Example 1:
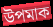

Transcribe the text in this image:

উপমাক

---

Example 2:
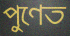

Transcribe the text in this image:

পুণেত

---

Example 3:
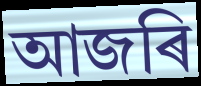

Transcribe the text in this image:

আজৰি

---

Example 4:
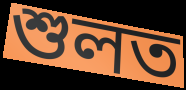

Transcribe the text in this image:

শুলত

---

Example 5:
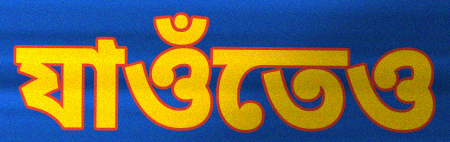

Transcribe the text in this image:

যাওঁতেও